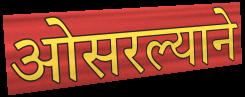
ओसरल्याने